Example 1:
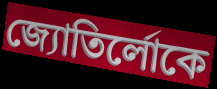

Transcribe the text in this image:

জ্যোতির্লোকে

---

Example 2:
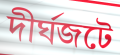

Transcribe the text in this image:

দীর্ঘজটে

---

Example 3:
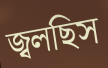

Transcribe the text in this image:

জ্বলছিস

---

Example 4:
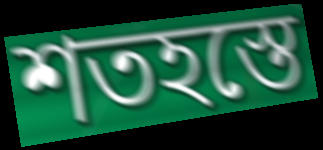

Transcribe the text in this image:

শতহস্তে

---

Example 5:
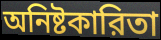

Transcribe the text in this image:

অনিষ্টকারিতা